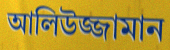
আলিউজ্জামান